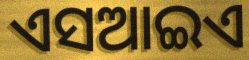
ଏସଆଇଏ